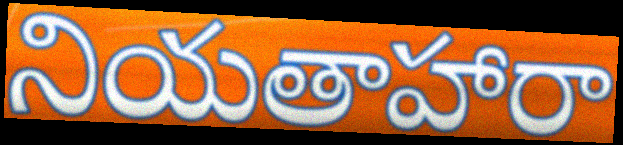
నియతాహారా